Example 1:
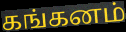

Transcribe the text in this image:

கங்கனம்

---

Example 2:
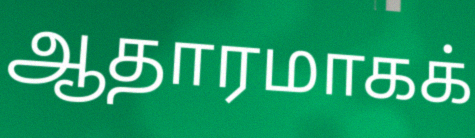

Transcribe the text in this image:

ஆதாரமாகக்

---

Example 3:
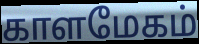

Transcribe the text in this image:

காளமேகம்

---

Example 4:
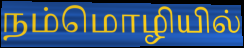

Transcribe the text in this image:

நம்மொழியில்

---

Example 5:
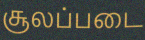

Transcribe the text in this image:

சூலப்படை